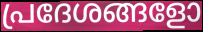
പ്രദേശങ്ങളോ